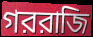
গররাজি